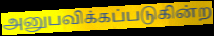
அனுபவிக்கப்படுகின்ற